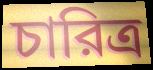
চারিত্র